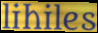
lihiles